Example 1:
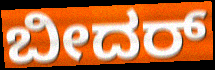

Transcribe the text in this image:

ಬೀದರ್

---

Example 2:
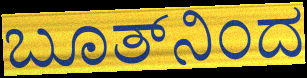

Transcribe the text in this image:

ಬೂತ್‌ನಿಂದ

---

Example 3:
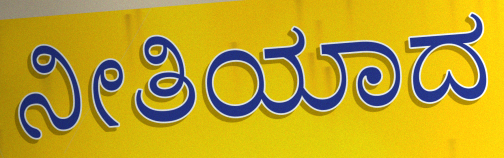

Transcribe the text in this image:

ನೀತಿಯಾದ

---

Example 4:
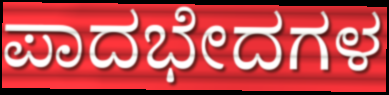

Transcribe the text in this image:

ಪಾದಭೇದಗಳ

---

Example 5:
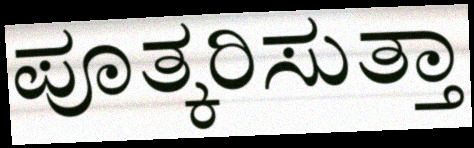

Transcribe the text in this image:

ಪೂತ್ಕರಿಸುತ್ತಾ